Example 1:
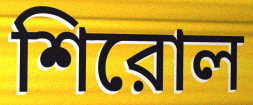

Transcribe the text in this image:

শিরোল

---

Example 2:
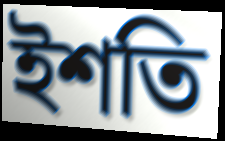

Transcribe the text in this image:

ইশতি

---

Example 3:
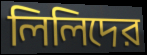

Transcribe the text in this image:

লিলিদের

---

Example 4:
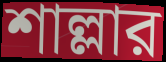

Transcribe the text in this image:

শাল্লার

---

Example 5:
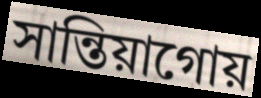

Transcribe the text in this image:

সান্তিয়াগোয়